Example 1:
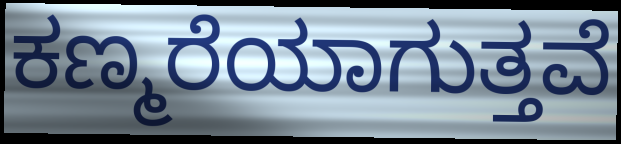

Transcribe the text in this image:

ಕಣ್ಮರೆಯಾಗುತ್ತವೆ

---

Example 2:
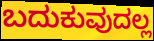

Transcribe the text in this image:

ಬದುಕುವುದಲ್ಲ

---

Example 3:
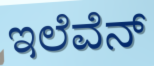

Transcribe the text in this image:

ಇಲೆವೆನ್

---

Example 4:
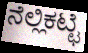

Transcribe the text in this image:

ನೆಲ್ಲಿಕಟ್ಟೆ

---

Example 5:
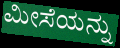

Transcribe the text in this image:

ಮೀಸೆಯನ್ನು